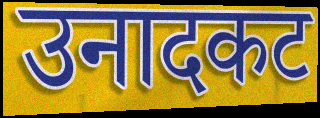
उनादकट